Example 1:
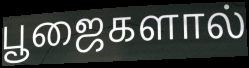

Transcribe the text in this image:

பூஜைகளால்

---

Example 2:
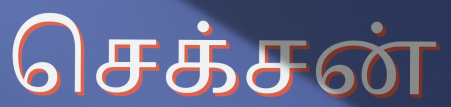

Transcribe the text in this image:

செக்சன்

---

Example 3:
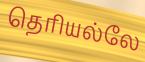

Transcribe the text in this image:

தெரியல்லே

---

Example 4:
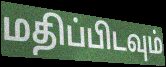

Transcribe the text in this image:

மதிப்பிடவும்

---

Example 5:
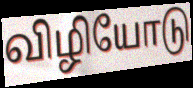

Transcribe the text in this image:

விழியோடு